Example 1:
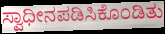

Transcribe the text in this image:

ಸ್ವಾಧೀನಪಡಿಸಿಕೊಂಡಿತು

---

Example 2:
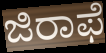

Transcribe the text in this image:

ಜಿರಾಫೆ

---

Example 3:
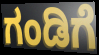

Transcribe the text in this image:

ಗಂಡಿಗೆ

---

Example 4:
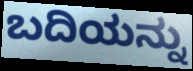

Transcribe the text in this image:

ಬದಿಯನ್ನು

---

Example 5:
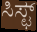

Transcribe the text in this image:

ಸಿಸ್ಟ್